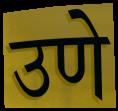
उणे